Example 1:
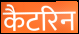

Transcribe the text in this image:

कैटरिन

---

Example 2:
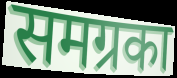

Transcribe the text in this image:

समग्रका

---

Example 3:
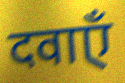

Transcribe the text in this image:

दवाएँ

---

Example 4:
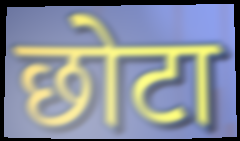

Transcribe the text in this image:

छोटा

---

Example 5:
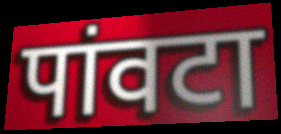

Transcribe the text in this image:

पांवटा